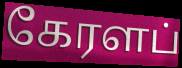
கேரளப்